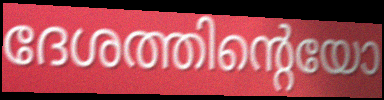
ദേശത്തിന്റെയോ